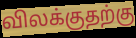
விலக்குதற்கு